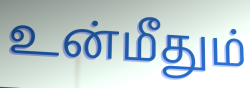
உன்மீதும்